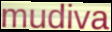
mudiva